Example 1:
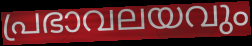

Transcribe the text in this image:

പ്രഭാവലയവും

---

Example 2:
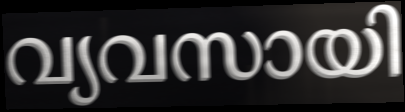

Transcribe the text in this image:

വ്യവസായി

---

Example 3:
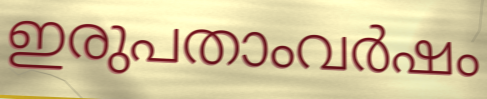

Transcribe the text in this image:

ഇരുപതാംവർഷം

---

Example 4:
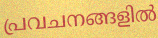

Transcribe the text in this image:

പ്രവചനങ്ങളിൽ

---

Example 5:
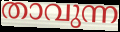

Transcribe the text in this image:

താവുന്ന